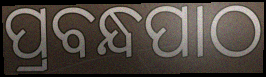
ପ୍ରବନ୍ଧପାଠ